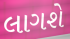
લાગશે